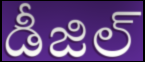
డీజిల్